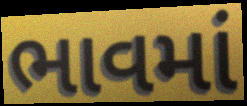
ભાવમાં